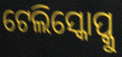
ଟେଲିସ୍କୋପ୍କୁ